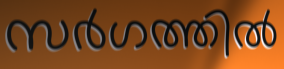
സർഗത്തിൽ